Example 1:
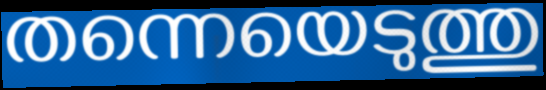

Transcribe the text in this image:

തന്നെയെടുത്തു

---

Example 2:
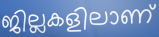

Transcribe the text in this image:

ജില്ലകളിലാണ്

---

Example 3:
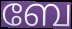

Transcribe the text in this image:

ബേ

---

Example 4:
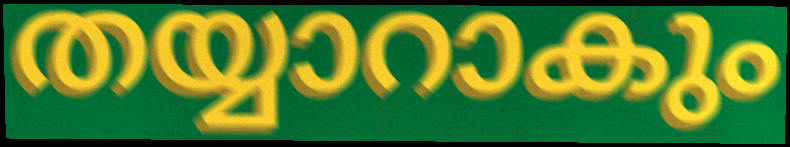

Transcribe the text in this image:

തയ്യാറാകും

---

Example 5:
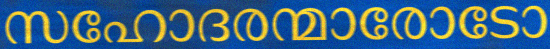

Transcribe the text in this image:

സഹോദരന്മാരോടോ